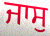
ਜਾਸੁ